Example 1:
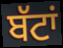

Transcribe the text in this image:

ਬੱਟਾਂ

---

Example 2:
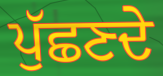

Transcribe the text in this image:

ਪੁੱਛਣਦੇ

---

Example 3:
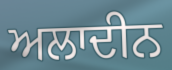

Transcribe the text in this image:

ਅਲਾਦੀਨ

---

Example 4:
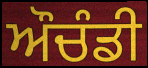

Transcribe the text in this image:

ਔਚੰਡੀ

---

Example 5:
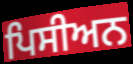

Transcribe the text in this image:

ਪਿਸੀਅਨ